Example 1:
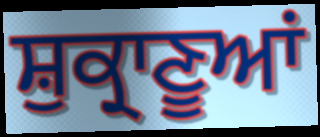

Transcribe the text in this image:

ਸ਼ੁਕ੍ਰਾਣੂਆਂ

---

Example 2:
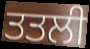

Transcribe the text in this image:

ਤਤਲੀ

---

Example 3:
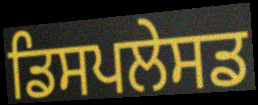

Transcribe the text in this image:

ਡਿਸਪਲੇਸਡ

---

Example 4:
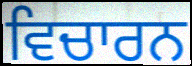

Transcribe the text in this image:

ਵਿਚਾਰਨ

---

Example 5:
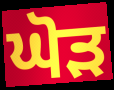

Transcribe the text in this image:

ਘੋੜ